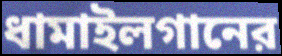
ধামাইলগানের